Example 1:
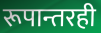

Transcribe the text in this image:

रूपान्तरही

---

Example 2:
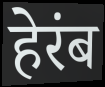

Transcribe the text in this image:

हेरंब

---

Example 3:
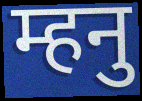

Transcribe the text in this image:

म्हनु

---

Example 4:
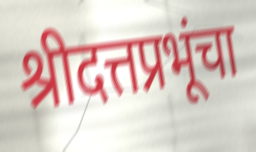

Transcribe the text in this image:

श्रीदत्तप्रभूंचा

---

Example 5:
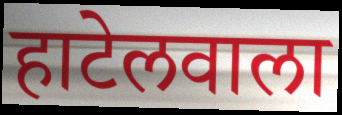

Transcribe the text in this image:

हाटेलवाला